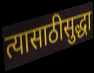
त्यासाठीसुद्धा